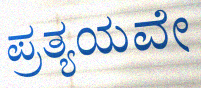
ಪ್ರತ್ಯಯವೇ